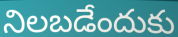
నిలబడేందుకు